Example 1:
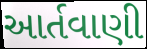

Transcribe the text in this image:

આર્તવાણી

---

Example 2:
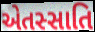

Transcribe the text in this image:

એતસ્સાતિ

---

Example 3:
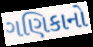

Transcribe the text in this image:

ગણિકાનો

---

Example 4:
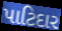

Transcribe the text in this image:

પાટિદાર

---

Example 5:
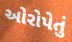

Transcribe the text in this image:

ઓરોપેતું